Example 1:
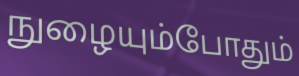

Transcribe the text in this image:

நுழையும்போதும்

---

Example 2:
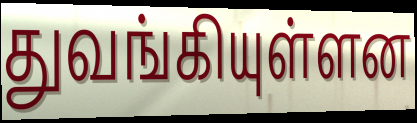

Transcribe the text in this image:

துவங்கியுள்ளன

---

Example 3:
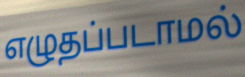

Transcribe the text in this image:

எழுதப்படாமல்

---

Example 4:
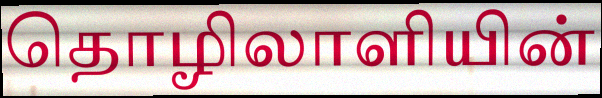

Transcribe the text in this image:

தொழிலாளியின்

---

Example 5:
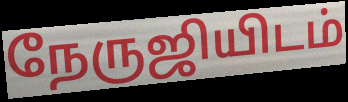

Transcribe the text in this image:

நேருஜியிடம்